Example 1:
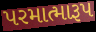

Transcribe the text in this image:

પરમાત્મારૂપ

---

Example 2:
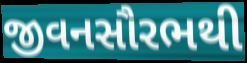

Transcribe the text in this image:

જીવનસૌરભથી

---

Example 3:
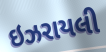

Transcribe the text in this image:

ઇઝરાયલી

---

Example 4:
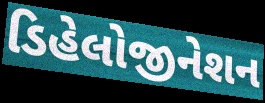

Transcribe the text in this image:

ડિહેલોજીનેશન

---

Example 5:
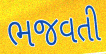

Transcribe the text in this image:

ભજવતી